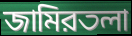
জামিরতলা